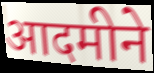
आदमीने